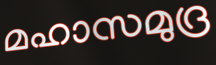
മഹാസമുദ്ര